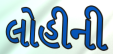
લોહીની